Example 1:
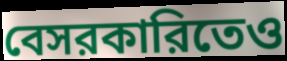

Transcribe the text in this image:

বেসরকারিতেও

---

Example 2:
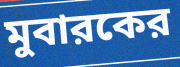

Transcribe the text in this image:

মুবারকের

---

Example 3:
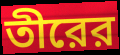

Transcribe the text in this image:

তীরের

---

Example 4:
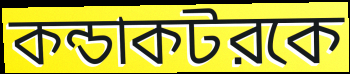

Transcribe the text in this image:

কন্ডাকটরকে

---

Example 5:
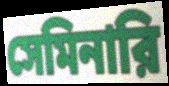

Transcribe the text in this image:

সেমিনারি